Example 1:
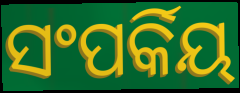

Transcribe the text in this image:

ସଂପର୍କିୟ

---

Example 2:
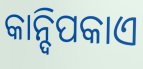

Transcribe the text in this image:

କାନ୍ଦିପକାଏ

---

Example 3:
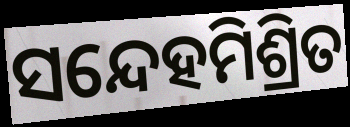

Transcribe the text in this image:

ସନ୍ଦେହମିଶ୍ରିତ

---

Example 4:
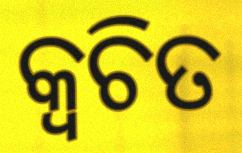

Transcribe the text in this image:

କ୍ବଚିତ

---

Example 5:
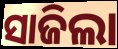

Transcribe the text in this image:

ସାଜିଲା